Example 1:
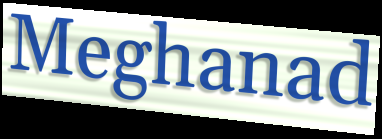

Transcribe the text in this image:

Meghanad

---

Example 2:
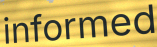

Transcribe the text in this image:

informed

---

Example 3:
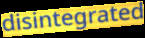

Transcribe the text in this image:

disintegrated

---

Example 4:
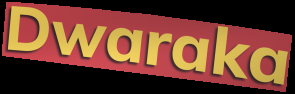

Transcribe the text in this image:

Dwaraka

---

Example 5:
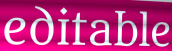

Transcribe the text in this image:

editable